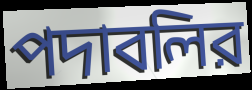
পদাবলির